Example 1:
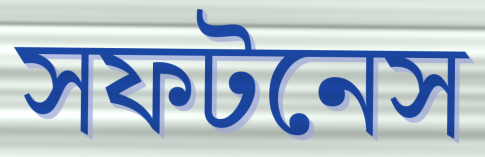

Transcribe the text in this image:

সফটনেস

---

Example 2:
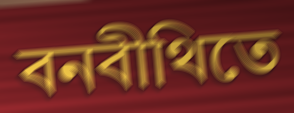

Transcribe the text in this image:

বনবীথিতে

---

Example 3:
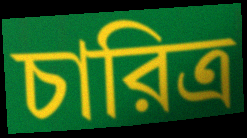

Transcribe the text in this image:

চারিত্র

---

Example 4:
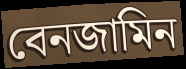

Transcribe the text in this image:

বেনজামিন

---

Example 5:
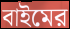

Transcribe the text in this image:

বাইমের